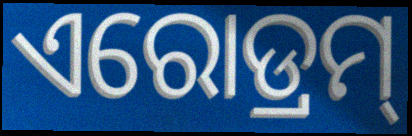
ଏରୋଡ୍ରମ୍